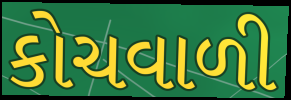
કોચવાળી